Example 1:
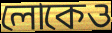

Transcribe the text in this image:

লোকেও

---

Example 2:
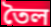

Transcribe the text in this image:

তৈল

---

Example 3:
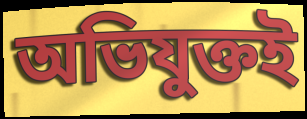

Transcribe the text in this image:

অভিযুক্তই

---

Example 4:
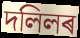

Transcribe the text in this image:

দলিলৰ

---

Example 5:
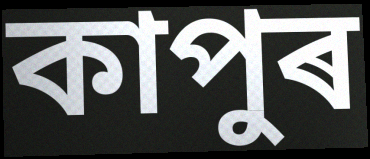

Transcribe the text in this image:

কাপুৰ